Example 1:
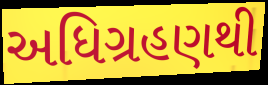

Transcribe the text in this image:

અધિગ્રહણથી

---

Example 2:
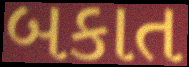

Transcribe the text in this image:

બકાત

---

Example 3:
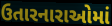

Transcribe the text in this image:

ઉતારનારાઓમાં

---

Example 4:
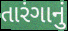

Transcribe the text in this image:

તારંગાનું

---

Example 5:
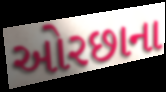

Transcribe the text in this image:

ઓરછાના